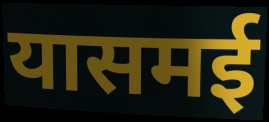
यासमई